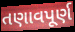
તણાવપૂર્ણ